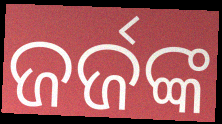
ଜର୍ଜଙ୍କ